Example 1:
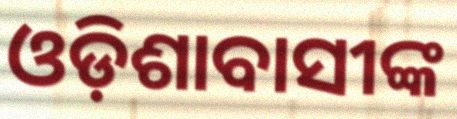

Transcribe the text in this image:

ଓଡ଼ିଶାବାସୀଙ୍କ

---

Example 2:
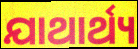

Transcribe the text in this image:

ଯାଥାର୍ଥ୍ୟ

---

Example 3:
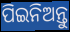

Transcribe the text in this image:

ପିଇନିଅନ୍ତୁ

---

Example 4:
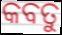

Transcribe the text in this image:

କବତୁ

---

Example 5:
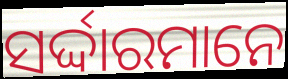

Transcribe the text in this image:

ସର୍ଦ୍ଦାରମାନେ